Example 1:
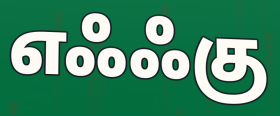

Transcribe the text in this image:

எஃஃகு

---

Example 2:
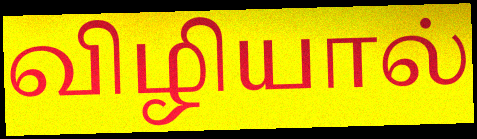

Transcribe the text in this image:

விழியால்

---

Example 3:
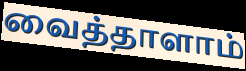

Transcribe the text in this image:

வைத்தாளாம்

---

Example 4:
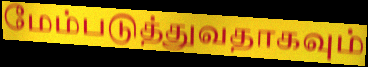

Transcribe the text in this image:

மேம்படுத்துவதாகவும்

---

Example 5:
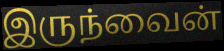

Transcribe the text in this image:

இருந்வைன்